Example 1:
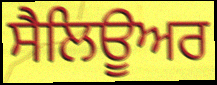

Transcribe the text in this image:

ਸੈਲਿਊਅਰ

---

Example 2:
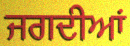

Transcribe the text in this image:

ਜਗਦੀਆਂ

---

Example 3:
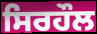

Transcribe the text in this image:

ਸਿਰਹੌਲ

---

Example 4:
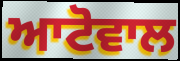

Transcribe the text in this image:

ਆਟੋਵਾਲ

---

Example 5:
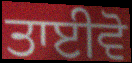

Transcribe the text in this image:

ਤਾਈਵੋ